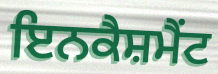
ਇਨਕੈਸ਼ਮੈਂਟ